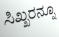
ಸಿಖ್ಖರನ್ನೂ